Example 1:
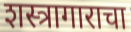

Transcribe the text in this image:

शस्त्रागाराचा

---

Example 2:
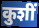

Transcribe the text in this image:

कुशीं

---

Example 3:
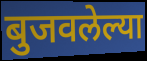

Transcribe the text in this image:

बुजवलेल्या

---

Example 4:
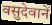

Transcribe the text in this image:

वसुदेवानें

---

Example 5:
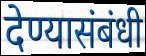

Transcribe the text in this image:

देण्यासंबंधी